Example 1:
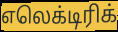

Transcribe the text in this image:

எலெக்டிரிக்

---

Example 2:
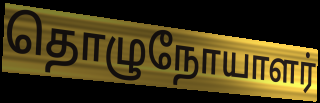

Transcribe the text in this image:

தொழுநோயாளர்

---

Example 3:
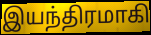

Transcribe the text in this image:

இயந்திரமாகி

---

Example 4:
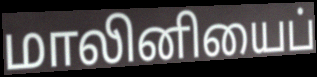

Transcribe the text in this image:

மாலினியைப்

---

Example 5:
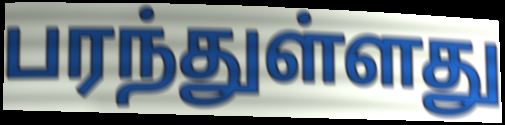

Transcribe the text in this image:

பரந்துள்ளது